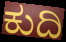
ಕುದಿ